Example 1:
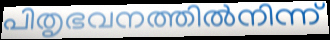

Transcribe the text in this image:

പിതൃഭവനത്തിൽനിന്ന്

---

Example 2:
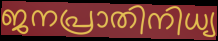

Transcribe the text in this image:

ജനപ്രാതിനിധ്യ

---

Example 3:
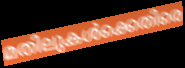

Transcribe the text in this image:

മതിലുകൾക്കെതിരെ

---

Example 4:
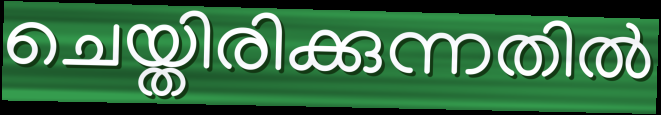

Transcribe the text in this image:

ചെയ്തിരിക്കുന്നതിൽ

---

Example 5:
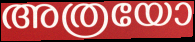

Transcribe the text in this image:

അത്രയോ